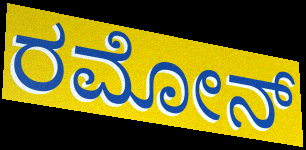
ರಮೋನ್